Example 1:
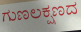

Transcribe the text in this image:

ಗುಣಲಕ್ಷಣದ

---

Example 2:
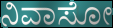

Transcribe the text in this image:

ನಿವಾಸೋ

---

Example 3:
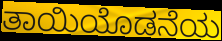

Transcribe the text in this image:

ತಾಯಿಯೊಡನೆಯ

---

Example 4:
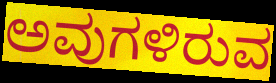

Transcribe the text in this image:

ಅವುಗಳಿರುವ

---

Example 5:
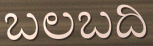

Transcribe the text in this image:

ಬಲಬದಿ